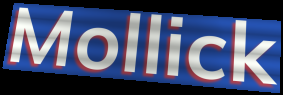
Mollick